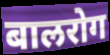
बालरोग